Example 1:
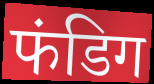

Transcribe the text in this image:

फंडिग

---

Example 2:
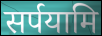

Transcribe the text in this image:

सर्पयामि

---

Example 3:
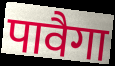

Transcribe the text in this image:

पावैगा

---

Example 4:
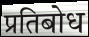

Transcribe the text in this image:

प्रतिबोध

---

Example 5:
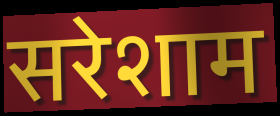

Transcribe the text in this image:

सरेशाम